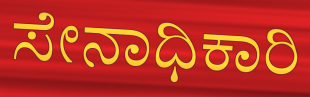
ಸೇನಾಧಿಕಾರಿ